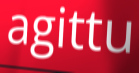
agittu